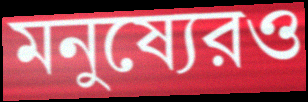
মনুষ্যেরও